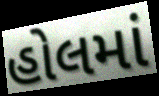
હોલમાં